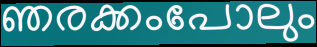
ഞരക്കംപോലും